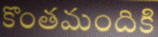
కొంతమందికి